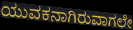
ಯುವಕನಾಗಿರುವಾಗಲೇ